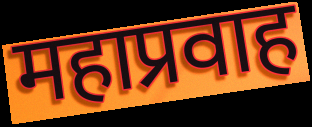
महाप्रवाह